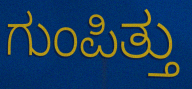
ಗುಂಪಿತ್ತು